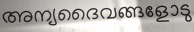
അന്യദൈവങ്ങളോടു